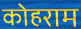
कोहराम